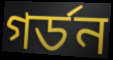
গৰ্ডন